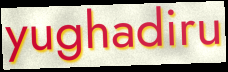
yughadiru